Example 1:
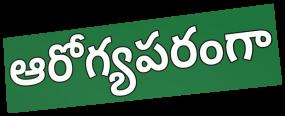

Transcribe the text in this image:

ఆరోగ్యపరంగా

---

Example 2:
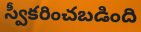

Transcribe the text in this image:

స్వీకరించబడింది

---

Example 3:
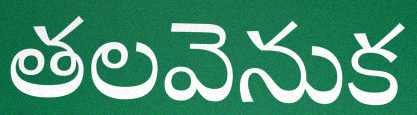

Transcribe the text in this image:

తలవెనుక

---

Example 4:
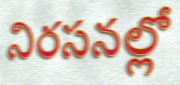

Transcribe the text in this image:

నిరసనల్లో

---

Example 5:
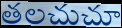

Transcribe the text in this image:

తలచుచూ